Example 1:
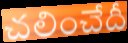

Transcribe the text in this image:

చలించేదీ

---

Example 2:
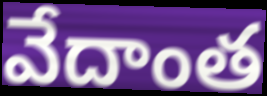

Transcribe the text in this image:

వేదాంత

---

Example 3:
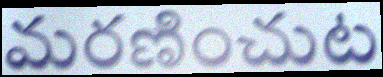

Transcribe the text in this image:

మరణించుట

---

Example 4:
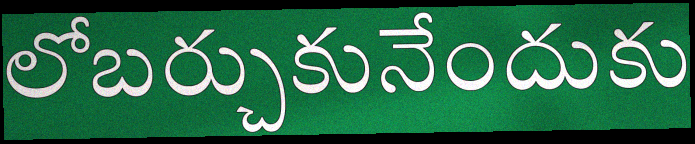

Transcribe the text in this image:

లోబర్చుకునేందుకు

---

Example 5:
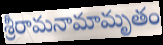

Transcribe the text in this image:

శ్రీరామనామామృతం